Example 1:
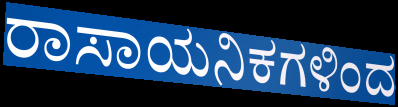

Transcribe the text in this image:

ರಾಸಾಯನಿಕಗಳಿಂದ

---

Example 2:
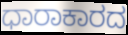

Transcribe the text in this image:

ಧಾರಾಕಾರದ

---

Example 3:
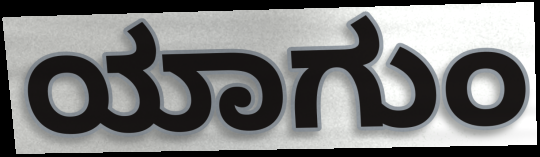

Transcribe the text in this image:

ಯಾಗುಂ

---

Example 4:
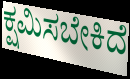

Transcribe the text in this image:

ಕ್ಷಮಿಸಬೇಕಿದೆ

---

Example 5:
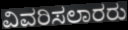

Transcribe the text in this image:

ವಿವರಿಸಲಾರರು